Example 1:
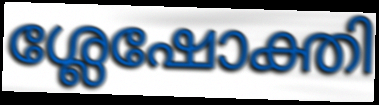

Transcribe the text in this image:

ശ്ലേഷോക്തി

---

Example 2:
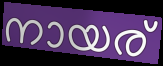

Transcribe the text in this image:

നായര്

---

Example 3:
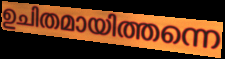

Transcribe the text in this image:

ഉചിതമായിത്തന്നെ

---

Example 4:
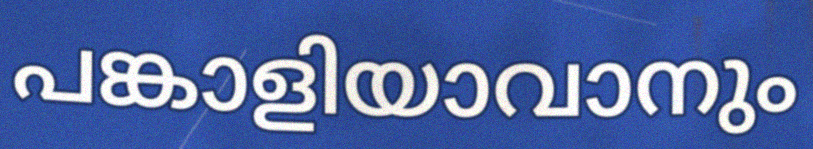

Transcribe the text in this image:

പങ്കാളിയാവാനും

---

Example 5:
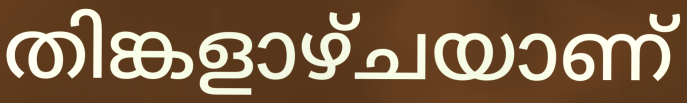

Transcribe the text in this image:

തിങ്കളാഴ്ചയാണ്